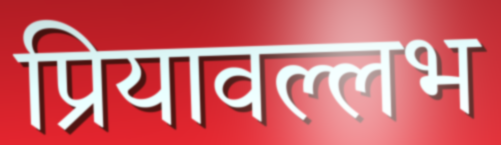
प्रियावल्लभ